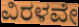
ವಿರಳವೇ